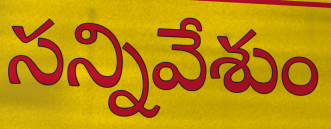
సన్నివేశుం